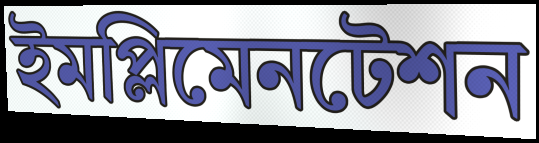
ইমপ্লিমেনটেশন